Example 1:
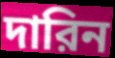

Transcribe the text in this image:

দারিন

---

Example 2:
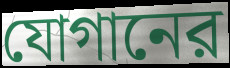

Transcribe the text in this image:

যোগানের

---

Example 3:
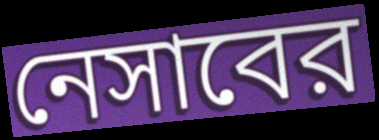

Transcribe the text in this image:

নেসাবের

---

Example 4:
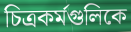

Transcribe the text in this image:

চিত্রকর্মগুলিকে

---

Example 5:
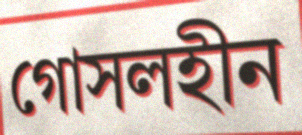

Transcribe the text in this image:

গোসলহীন